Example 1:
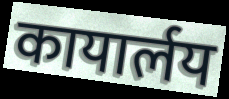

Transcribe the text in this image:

कायार्लय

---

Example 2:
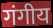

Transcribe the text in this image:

गंगीय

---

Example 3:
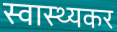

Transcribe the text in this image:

स्वास्थ्यकर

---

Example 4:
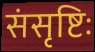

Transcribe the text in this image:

संसृष्टिः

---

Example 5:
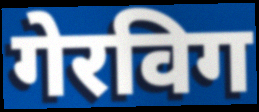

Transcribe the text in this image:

गेरविग